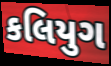
કલિયુગ